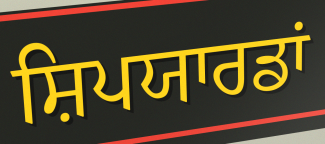
ਸ਼ਿਪਯਾਰਡਾਂ